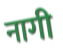
नागी